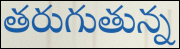
తరుగుతున్న